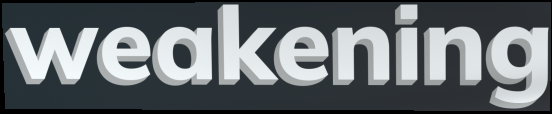
weakening